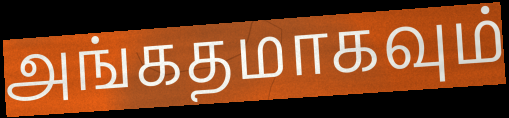
அங்கதமாகவும்